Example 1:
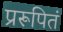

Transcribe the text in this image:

प्ररूपितं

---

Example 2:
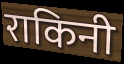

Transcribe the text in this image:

राकिनी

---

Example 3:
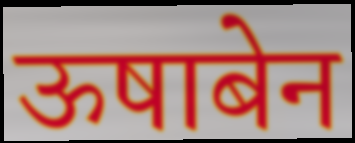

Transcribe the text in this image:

ऊषाबेन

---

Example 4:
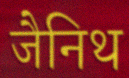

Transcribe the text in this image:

जैनिथ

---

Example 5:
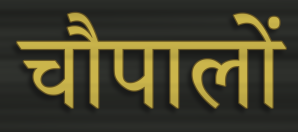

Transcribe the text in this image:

चौपालों